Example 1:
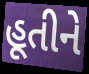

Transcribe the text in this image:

હૂતીને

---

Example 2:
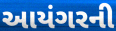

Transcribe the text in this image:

આયંગરની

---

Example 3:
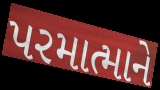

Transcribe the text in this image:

પરમાત્માને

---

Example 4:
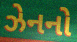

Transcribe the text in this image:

ઝેનનો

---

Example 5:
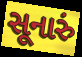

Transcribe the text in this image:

સૂનારું